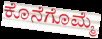
ಕೊನೆಗೊಮ್ಮೆ